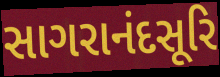
સાગરાનંદસૂરિ